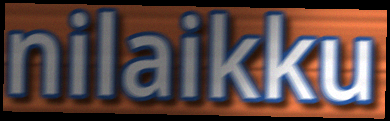
nilaikku